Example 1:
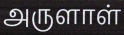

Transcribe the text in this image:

அருளாள்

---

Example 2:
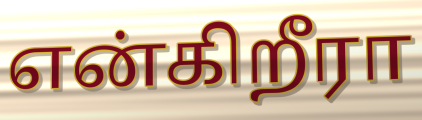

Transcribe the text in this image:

என்கிறீரா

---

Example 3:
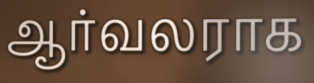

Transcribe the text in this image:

ஆர்வலராக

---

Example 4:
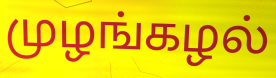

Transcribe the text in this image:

முழங்கழல்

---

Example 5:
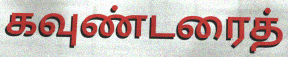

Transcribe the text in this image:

கவுண்டரைத்